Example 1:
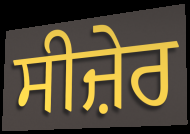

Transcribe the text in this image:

ਸੀਜ਼ੇਰ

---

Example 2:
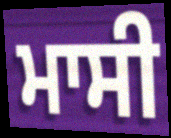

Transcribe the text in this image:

ਮਾਸੀ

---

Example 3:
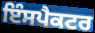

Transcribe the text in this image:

ਇੰਸਪੈਕਟਰ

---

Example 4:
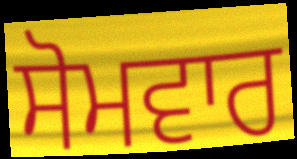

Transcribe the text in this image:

ਸੋਮਵਾਰ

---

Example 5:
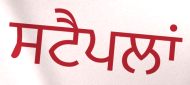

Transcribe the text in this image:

ਸਟੈਪਲਾਂ